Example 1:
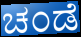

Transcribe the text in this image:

ಚಂಡೆ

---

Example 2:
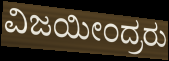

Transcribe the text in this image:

ವಿಜಯೀಂದ್ರರು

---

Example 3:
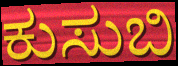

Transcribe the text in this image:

ಕುಸುಬಿ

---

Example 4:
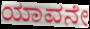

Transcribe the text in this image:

ಯಾವನೇ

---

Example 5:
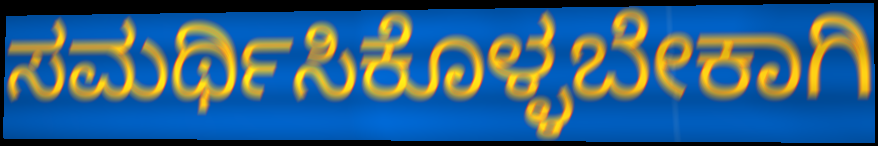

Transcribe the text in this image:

ಸಮರ್ಥಿಸಿಕೊಳ್ಳಬೇಕಾಗಿ